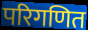
परिगणित